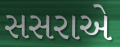
સસરાએ